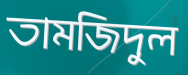
তামজিদুল